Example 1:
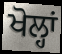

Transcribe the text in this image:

ਖੋਲ੍ਹਾਂ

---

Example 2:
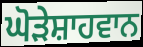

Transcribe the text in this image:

ਘੋੜੇਸ਼ਾਹਵਾਨ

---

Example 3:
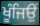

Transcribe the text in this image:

ਖੂੰਜਿਉਂ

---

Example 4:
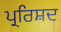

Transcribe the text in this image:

ਪ੍ਰਰਿਸ਼ਦ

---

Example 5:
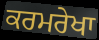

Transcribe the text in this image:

ਕਰਮਰੇਖਾ